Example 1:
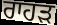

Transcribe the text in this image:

ਰਾਹੜ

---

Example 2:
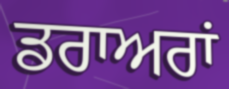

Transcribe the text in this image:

ਡਰਾਅਰਾਂ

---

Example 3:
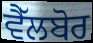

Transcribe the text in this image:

ਵੈੱਲਬੋਰ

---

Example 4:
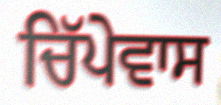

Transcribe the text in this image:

ਚਿੱਪੇਵਾਸ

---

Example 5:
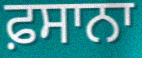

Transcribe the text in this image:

ਫ਼ਸਾਨਾ